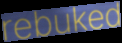
rebuked